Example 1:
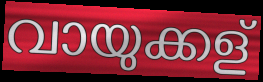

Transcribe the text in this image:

വായുക്കള്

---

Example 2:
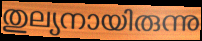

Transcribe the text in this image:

തുല്യനായിരുന്നു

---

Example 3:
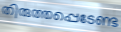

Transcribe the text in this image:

തിരുത്തപ്പെടേണ്ട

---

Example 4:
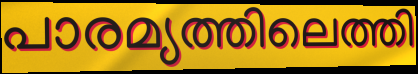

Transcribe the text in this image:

പാരമ്യത്തിലെത്തി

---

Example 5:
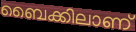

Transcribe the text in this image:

ബൈക്കിലാണ്